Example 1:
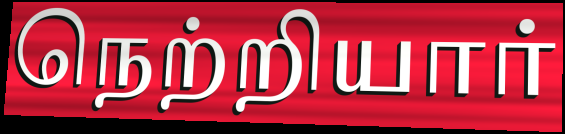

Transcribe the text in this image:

நெற்றியார்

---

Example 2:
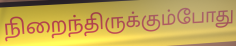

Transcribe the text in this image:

நிறைந்திருக்கும்போது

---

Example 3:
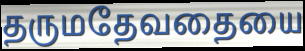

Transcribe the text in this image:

தருமதேவதையை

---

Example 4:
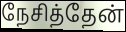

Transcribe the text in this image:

நேசித்தேன்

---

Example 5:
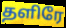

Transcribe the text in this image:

தளிரே